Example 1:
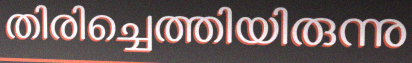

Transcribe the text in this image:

തിരിച്ചെത്തിയിരുന്നു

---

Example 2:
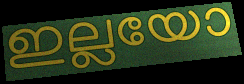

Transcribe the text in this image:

ഇല്ലയോ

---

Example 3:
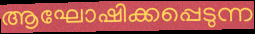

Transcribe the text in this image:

ആഘോഷിക്കപ്പെടുന്ന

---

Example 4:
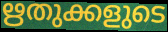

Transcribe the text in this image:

ഋതുക്കളുടെ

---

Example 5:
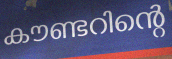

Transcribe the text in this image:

കൗണ്ടറിന്റെ